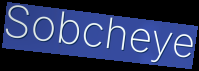
Sobcheye